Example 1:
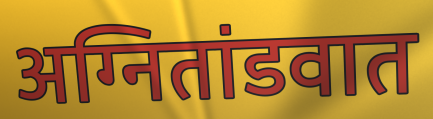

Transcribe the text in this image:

अग्नितांडवात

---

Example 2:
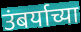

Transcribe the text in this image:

उंबर्याच्या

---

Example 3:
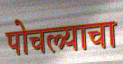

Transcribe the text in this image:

पोचल्याचा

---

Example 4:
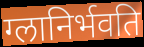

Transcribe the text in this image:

ग्लानिर्भवति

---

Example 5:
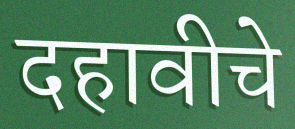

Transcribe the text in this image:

दहावीचे